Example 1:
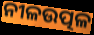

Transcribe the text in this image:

ନୀଳଉତ୍ପଳ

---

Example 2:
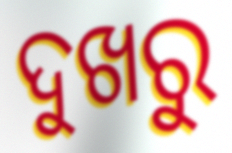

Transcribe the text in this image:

ଦୁଖରୁ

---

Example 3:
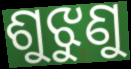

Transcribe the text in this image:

ଶୁଝୁଣୁ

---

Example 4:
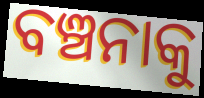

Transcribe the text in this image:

ବଞ୍ଚନାକୁ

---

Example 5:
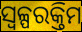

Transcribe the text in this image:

ସ୍ୱଳ୍ପରକ୍ତିମ